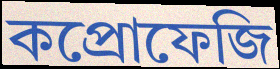
কপ্রোফেজি